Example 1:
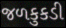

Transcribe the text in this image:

જળકુકડી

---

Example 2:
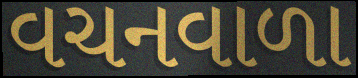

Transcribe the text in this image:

વચનવાળા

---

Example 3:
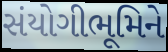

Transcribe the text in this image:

સંયોગીભૂમિને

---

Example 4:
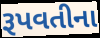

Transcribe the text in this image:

રૂપવતીના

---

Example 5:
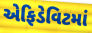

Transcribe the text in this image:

એફિડેવિટમાં